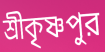
শ্রীকৃষ্ণপুর